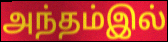
அந்தம்இல்